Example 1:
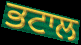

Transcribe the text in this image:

ਭਟਾਲ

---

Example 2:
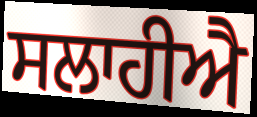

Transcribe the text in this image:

ਸਲਾਹੀਐ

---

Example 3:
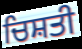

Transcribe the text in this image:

ਚਿਸ਼ਤੀ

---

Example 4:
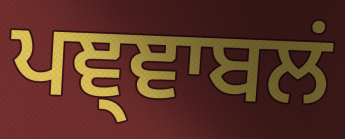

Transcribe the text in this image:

ਪਞ੍ਞਾਬਲਂ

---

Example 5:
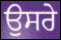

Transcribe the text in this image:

ਉਸਰੇ